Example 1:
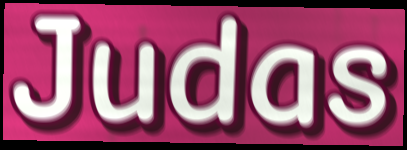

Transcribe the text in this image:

Judas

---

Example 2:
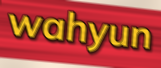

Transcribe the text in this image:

wahyun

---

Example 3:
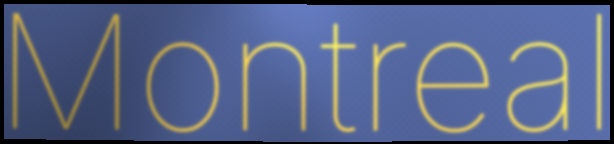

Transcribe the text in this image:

Montreal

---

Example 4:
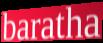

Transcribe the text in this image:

baratha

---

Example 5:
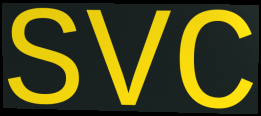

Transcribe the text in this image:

SVC